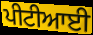
ਪੀਟੀਆਈ